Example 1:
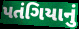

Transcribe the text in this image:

પતંગિયાનું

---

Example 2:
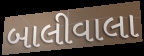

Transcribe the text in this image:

બાલીવાલા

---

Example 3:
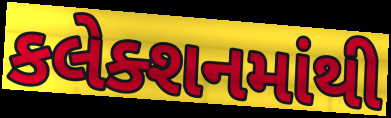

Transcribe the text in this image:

કલેક્શનમાંથી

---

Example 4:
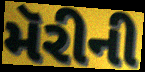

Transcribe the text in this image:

મૅરીની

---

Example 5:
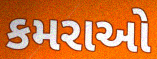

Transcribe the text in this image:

કમરાઓ